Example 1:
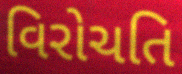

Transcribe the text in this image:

વિરોચતિ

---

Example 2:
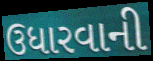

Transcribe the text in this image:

ઉધારવાની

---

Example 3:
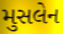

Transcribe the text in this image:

મુસલેન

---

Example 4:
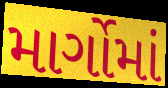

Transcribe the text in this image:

માર્ગોમાં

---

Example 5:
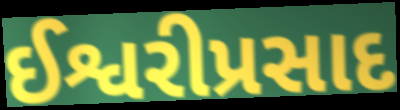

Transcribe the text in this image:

ઈશ્વરીપ્રસાદ